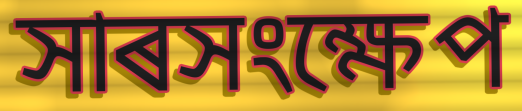
সাৰসংক্ষেপ